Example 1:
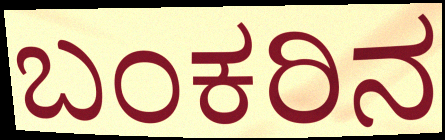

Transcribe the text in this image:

ಬಂಕರಿನ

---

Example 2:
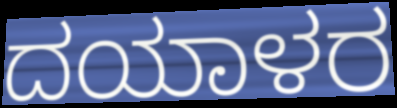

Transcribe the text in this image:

ದಯಾಳರ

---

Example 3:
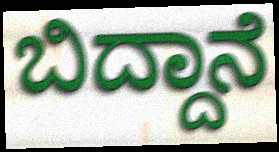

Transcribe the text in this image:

ಬಿದ್ದಾನೆ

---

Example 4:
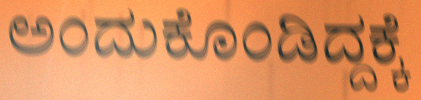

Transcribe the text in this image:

ಅಂದುಕೊಂಡಿದ್ದಕ್ಕೆ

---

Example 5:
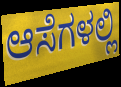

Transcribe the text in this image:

ಆಸೆಗಳಲ್ಲಿ